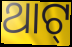
ଥାଟ୍